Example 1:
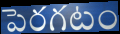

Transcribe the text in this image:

పెరగటం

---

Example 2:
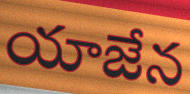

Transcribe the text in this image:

యాజేన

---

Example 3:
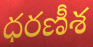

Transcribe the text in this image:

ధరణీశ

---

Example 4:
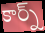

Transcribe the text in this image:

కార్న్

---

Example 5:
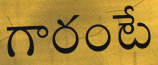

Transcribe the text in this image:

గారంటే